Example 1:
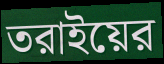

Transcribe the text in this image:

তরাইয়ের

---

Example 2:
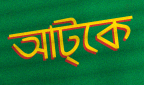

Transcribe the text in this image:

আট্‌কে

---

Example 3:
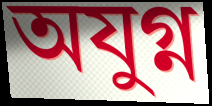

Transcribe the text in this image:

অযুগ্ন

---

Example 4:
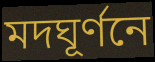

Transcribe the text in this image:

মদঘূর্ণনে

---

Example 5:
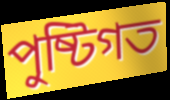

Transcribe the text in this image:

পুষ্টিগত